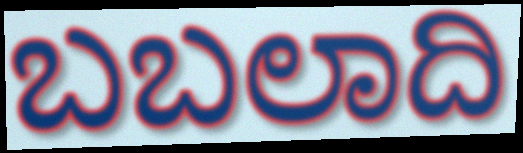
ಬಬಲಾದಿ